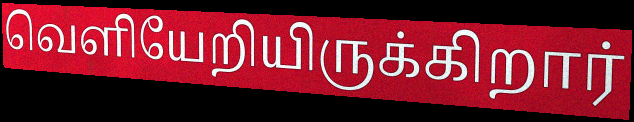
வெளியேறியிருக்கிறார்